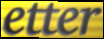
etter